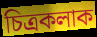
চিত্ৰকলাক